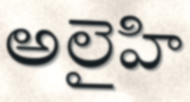
అలైహి